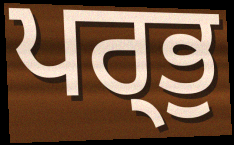
ਪਰ੍ਭੁ